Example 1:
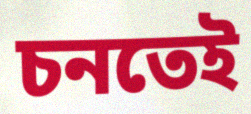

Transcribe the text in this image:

চনতেই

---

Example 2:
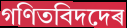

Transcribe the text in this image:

গণিতবিদদেৰ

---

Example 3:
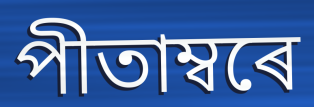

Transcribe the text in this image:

পীতাম্বৰে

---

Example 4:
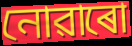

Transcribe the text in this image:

নোৱাৰো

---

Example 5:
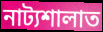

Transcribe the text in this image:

নাট্যশালাত